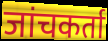
जांचकर्ता